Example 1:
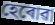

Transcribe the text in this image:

হেৰোৱা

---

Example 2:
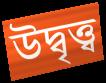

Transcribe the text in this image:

উদ্বৃত্ত্ব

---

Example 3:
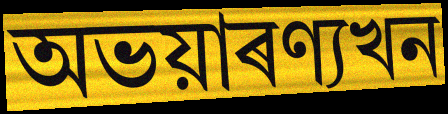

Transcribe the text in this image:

অভয়াৰণ্যখন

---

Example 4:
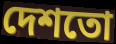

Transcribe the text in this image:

দেশতো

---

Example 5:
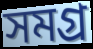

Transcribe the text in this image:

সমগ্ৰ